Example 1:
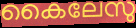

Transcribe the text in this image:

കൈലേസു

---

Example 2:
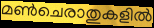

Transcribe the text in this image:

മൺചെരാതുകളിൽ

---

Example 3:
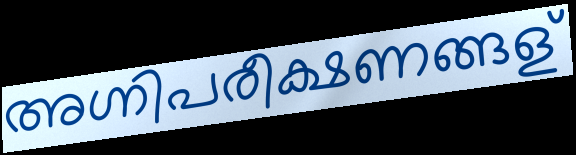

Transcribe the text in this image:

അഗ്നിപരീക്ഷണങ്ങള്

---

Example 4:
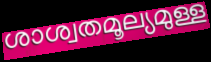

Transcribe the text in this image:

ശാശ്വതമൂല്യമുള്ള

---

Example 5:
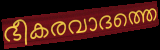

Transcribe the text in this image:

ഭീകരവാദത്തെ